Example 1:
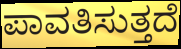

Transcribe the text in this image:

ಪಾವತಿಸುತ್ತದೆ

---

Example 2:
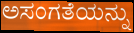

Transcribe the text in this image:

ಅಸಂಗತೆಯನ್ನು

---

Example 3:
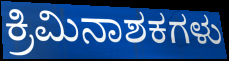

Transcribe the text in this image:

ಕ್ರಿಮಿನಾಶಕಗಳು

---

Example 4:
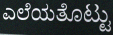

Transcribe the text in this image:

ಎಲೆಯತೊಟ್ಟು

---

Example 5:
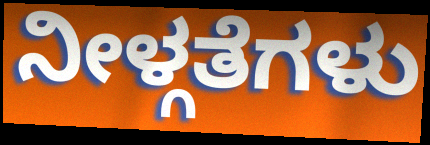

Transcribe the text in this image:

ನೀಳ್ಗತೆಗಳು